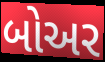
બોઅર